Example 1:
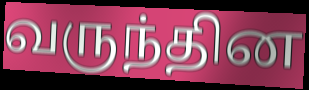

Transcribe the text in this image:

வருந்தின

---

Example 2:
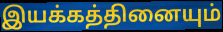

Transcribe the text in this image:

இயக்கத்தினையும்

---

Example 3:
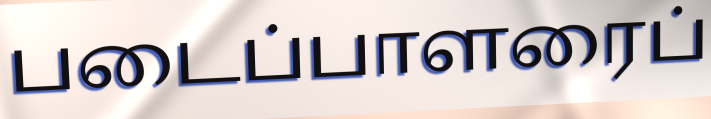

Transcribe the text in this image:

படைப்பாளரைப்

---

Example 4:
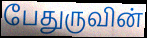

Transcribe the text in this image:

பேதுருவின்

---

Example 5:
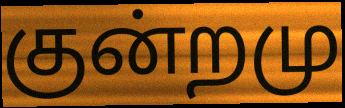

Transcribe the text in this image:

குன்றமு